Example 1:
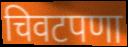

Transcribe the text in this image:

चिवटपणा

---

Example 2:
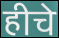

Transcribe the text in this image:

हीचे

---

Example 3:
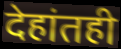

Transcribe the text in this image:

देहांतही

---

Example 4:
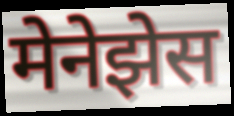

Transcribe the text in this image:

मेनेझेस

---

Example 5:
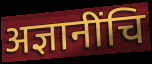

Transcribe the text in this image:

अज्ञानींचि